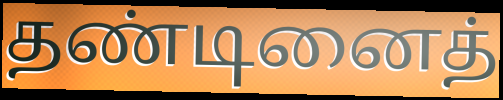
தண்டினைத்